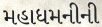
મહાધમનીની